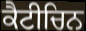
ਕੈਟੀਚਿਨ